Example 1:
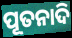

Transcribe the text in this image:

ପୂତନାଦି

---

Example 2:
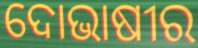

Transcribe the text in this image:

ଦୋଭାଷୀର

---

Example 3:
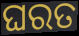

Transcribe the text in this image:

ଘରତ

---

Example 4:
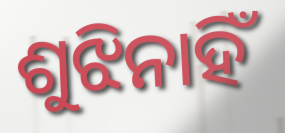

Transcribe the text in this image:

ଶୁଝିନାହିଁ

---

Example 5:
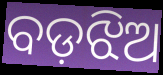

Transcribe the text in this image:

ବଡ଼ଝିଅ